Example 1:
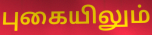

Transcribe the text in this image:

புகையிலும்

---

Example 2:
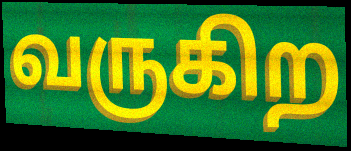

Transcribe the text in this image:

வருகிற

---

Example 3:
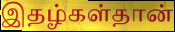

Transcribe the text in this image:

இதழ்கள்தான்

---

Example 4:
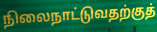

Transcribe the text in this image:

நிலைநாட்டுவதற்குத்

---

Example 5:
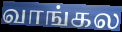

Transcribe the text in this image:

வாங்கல